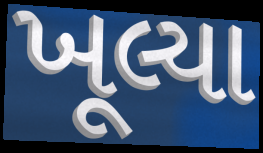
ખૂલ્યા